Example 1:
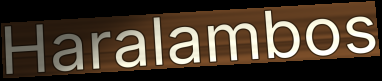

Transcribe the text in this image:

Haralambos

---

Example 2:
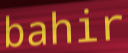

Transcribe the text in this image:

bahir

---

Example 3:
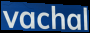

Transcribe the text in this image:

vachal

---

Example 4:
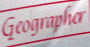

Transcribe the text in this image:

Geographer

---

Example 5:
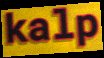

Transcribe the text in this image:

kalp